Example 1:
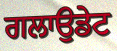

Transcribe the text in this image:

ਗਲਾਉਡੇਟ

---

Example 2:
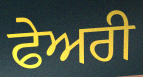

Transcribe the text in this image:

ਫੇਅਰੀ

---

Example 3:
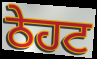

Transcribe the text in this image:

ਠੇਹਟ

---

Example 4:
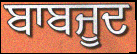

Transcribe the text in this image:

ਬਾਬਜੂਦ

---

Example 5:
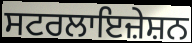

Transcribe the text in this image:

ਸਟਰਲਾਇਜ਼ੇਸ਼ਨ